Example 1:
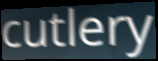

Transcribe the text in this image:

cutlery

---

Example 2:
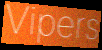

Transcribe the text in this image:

Vipers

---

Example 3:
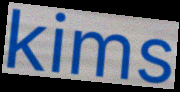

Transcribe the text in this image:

kims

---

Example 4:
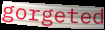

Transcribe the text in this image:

gorgeted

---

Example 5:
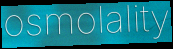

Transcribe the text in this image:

osmolality